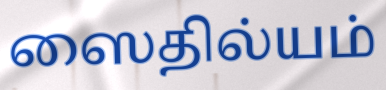
ஸைதில்யம்